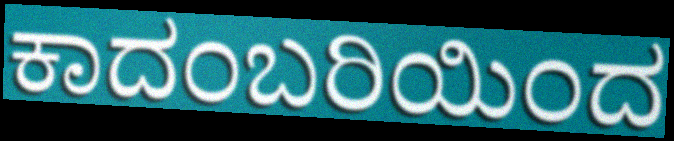
ಕಾದಂಬರಿಯಿಂದ